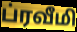
ப்ரவீமி